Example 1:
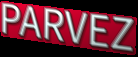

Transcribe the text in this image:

PARVEZ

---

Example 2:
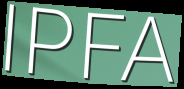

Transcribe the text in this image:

IPFA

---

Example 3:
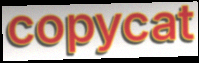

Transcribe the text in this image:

copycat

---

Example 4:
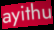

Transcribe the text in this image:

ayithu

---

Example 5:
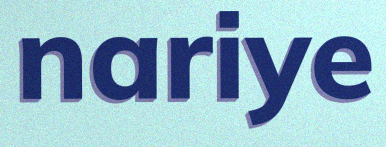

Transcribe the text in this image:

nariye